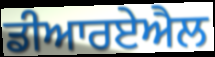
ਡੀਆਰਏਐਲ